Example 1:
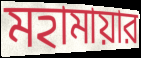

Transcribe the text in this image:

মহামায়ার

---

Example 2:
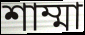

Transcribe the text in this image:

শাম্মা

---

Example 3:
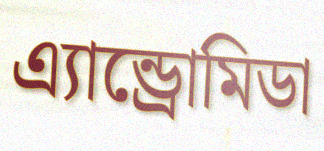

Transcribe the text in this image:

এ্যান্ড্রোমিডা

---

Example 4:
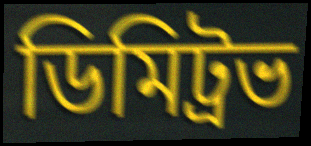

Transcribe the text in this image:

ডিমিট্রভ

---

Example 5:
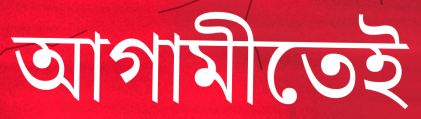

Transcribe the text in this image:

আগামীতেই